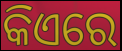
କିଏରେ